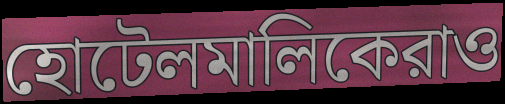
হোটেলমালিকেরাও